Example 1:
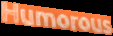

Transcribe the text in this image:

Humorous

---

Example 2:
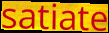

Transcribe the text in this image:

satiate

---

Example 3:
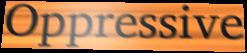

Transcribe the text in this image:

Oppressive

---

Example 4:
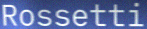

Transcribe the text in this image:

Rossetti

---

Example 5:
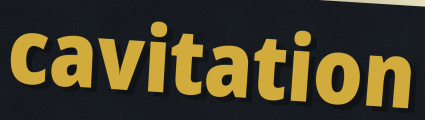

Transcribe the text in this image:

cavitation